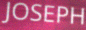
JOSEPH